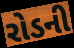
રોડની